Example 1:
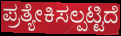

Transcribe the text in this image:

ಪ್ರತ್ಯೇಕಿಸಲ್ಪಟ್ಟಿದೆ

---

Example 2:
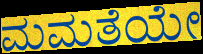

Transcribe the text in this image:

ಮಮತೆಯೇ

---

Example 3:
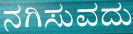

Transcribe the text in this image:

ನಗಿಸುವದು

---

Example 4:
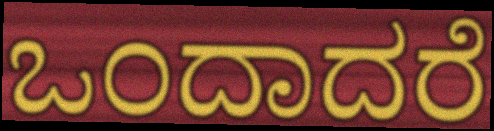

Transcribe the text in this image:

ಒಂದಾದರೆ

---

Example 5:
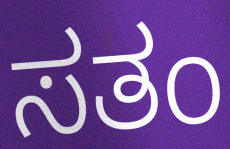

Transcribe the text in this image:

ಸತಂ